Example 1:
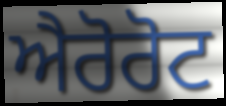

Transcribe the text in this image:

ਐਰੋਰੋਟ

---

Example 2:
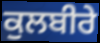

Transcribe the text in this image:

ਕੁਲਬੀਰੇ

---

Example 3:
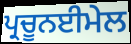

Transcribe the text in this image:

ਪ੍ਰਚੂਨਈਮੇਲ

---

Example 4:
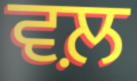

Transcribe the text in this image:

ਵਲ਼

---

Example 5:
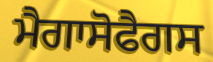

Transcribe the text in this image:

ਮੈਗਾਸੋਫੈਗਸ